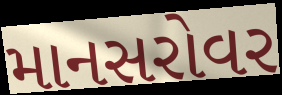
માનસરોવર